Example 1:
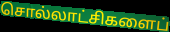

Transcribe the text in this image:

சொல்லாட்சிகளைப்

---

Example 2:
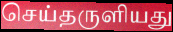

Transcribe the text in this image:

செய்தருளியது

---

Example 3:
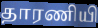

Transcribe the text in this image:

தாரணியி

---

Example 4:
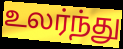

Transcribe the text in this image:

உலர்ந்து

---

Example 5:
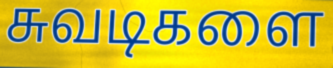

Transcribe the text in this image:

சுவடிகளை